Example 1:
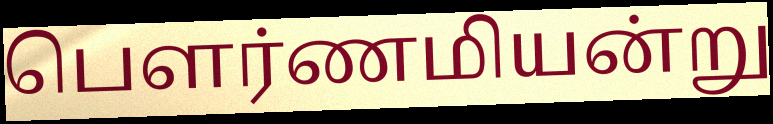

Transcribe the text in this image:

பெளர்ணமியன்று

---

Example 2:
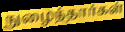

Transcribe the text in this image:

நுழைந்தார்கள்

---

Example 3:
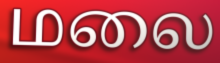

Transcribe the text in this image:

மலை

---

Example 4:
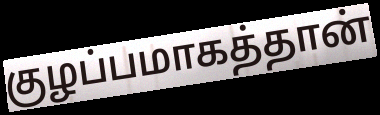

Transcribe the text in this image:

குழப்பமாகத்தான்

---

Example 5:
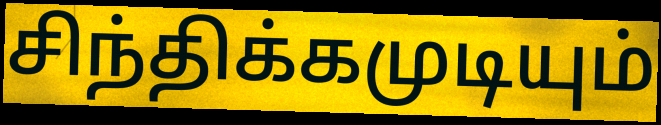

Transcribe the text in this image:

சிந்திக்கமுடியும்